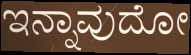
ಇನ್ನಾವುದೋ